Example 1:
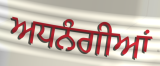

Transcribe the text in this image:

ਅਧਨੰਗੀਆਂ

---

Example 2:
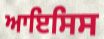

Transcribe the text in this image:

ਆਇਸਿਸ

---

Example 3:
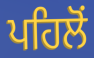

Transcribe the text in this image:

ਪਹਿਲੋਂ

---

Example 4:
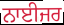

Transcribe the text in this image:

ਨਾਈਜਰ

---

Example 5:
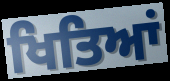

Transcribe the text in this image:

ਖਿਤਿਆਂ